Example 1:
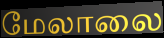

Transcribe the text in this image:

மேலாலை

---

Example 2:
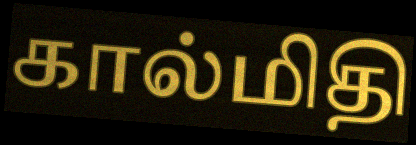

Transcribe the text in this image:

கால்மிதி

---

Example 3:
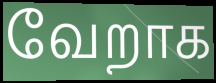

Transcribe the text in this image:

வேறாக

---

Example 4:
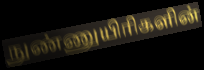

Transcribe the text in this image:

நுண்ணுயிரிகளின்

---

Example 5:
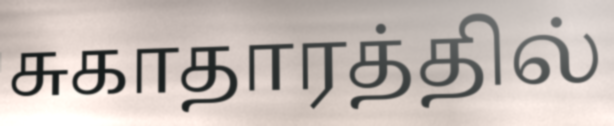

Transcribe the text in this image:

சுகாதாரத்தில்